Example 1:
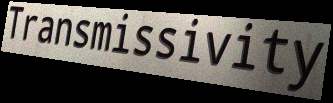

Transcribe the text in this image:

Transmissivity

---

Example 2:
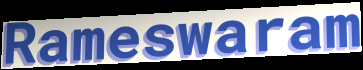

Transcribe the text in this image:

Rameswaram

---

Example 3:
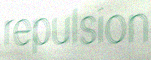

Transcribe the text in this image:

repulsion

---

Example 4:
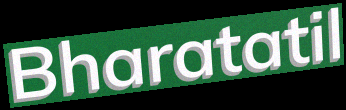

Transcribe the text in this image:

Bharatatil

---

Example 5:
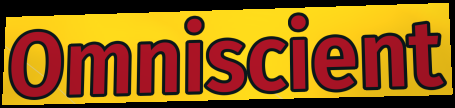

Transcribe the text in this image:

Omniscient